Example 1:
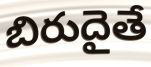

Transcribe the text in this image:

బిరుదైతే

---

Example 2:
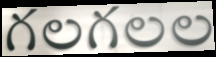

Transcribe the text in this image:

గలగలల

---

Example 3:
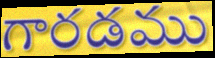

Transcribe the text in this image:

గారడము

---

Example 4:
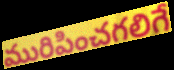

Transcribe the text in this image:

మురిపించగలిగే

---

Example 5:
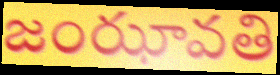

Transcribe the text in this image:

జంఝావతి